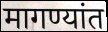
मागण्यांत